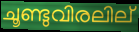
ചൂണ്ടുവിരലില്